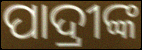
ପାଦ୍ରୀଙ୍କ